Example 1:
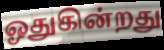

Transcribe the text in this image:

ஓதுகின்றது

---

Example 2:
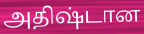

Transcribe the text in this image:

அதிஷ்டான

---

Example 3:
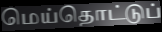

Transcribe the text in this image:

மெய்தொட்டுப்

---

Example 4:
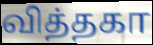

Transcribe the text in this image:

வித்தகா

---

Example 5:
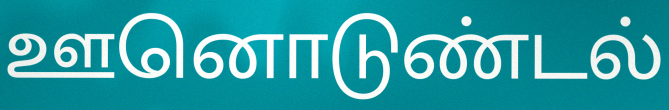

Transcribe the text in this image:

ஊனொடுண்டல்